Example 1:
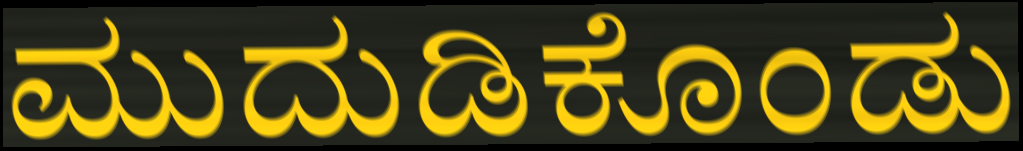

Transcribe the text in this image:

ಮುದುಡಿಕೊಂಡು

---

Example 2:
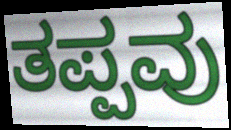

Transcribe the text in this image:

ತಪ್ಪವು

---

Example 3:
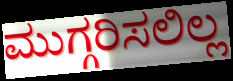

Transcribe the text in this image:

ಮುಗ್ಗರಿಸಲಿಲ್ಲ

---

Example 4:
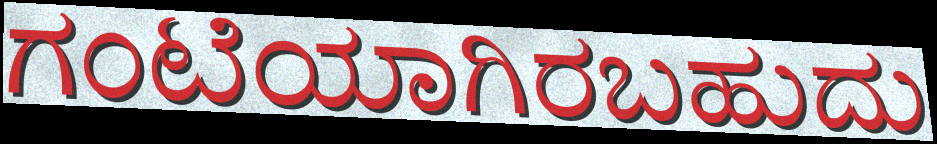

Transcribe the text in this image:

ಗಂಟೆಯಾಗಿರಬಹುದು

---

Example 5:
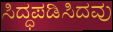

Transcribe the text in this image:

ಸಿದ್ಧಪಡಿಸಿದವು